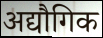
अद्यौगिक